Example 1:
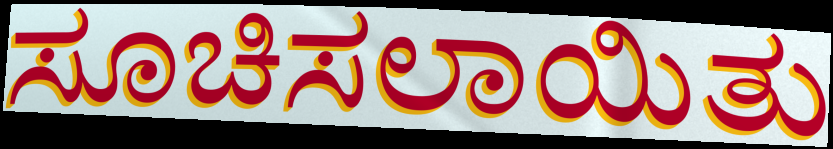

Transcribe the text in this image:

ಸೂಚಿಸಲಾಯಿತು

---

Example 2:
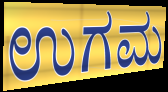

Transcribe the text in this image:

ಉಗಮ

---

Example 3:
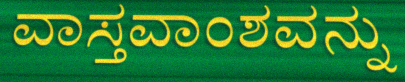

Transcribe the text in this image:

ವಾಸ್ತವಾಂಶವನ್ನು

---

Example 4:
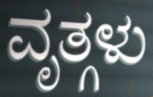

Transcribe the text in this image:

ವೃತ್ಗಳು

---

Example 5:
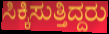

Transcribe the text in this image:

ಸಿಕ್ಕಿಸುತ್ತಿದ್ದರು